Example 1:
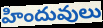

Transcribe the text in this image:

హిందువులు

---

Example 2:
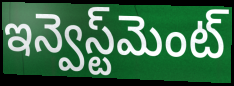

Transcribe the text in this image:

ఇన్వెస్ట్‌మెంట్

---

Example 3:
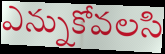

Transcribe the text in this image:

ఎన్నుకోవలసి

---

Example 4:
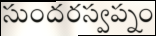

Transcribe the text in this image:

సుందరస్వప్నం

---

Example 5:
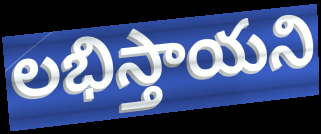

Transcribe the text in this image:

లభిస్తాయని